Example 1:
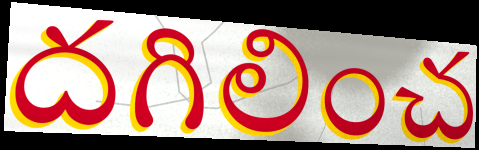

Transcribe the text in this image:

దగిలించ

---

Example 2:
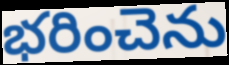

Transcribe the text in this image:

భరించెను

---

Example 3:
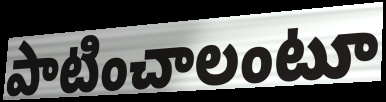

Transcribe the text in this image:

పాటించాలంటూ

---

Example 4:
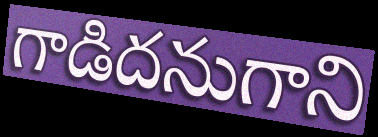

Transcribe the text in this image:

గాడిదనుగాని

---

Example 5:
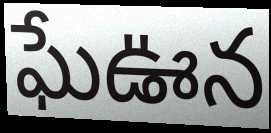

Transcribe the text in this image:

ఘేఊన